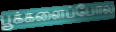
பூக்களைப்போல